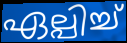
ഏല്പിച്ച്